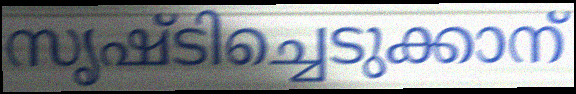
സൃഷ്ടിച്ചെടുക്കാന്